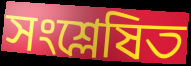
সংশ্লেষিত